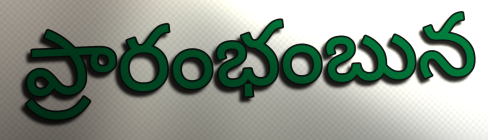
ప్రారంభంబున